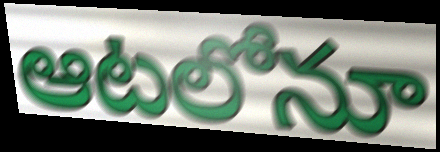
ఆటలోనూ